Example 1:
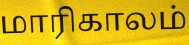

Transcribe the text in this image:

மாரிகாலம்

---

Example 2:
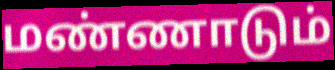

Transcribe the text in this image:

மண்ணாடும்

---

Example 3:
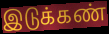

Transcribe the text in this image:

இடுக்கண்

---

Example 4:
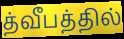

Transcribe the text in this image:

த்வீபத்தில்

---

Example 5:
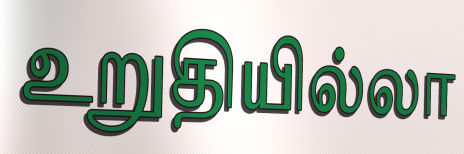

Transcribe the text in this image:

உறுதியில்லா